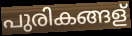
പുരികങ്ങള്